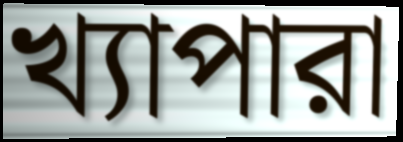
খ্যাপারা